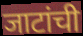
जाटांची